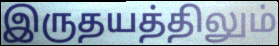
இருதயத்திலும்